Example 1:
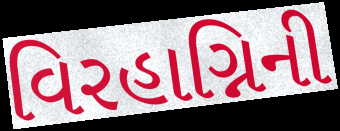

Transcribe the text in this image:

વિરહાગ્નિની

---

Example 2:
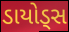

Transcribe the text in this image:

ડાયોડ્સ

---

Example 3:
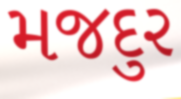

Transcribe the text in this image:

મજદુર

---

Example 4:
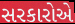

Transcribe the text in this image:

સરકારોએ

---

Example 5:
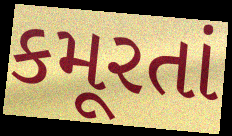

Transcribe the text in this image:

કમૂરતાં